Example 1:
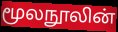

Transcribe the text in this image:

மூலநூலின்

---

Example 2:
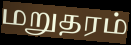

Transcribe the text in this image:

மறுதரம்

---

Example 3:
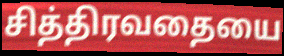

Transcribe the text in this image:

சித்திரவதையை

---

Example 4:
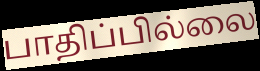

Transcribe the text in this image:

பாதிப்பில்லை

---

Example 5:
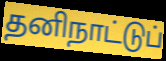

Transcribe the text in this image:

தனிநாட்டுப்